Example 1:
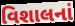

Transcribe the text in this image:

વિશાલનાં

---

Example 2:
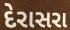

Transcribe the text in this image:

દેરાસરા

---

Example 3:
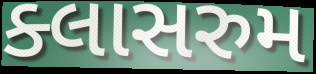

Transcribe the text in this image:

ક્લાસરુમ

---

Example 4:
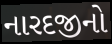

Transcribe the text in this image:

નારદજીનો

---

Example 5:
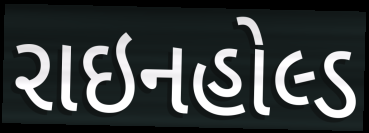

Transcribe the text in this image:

રાઇનહોલ્ડ